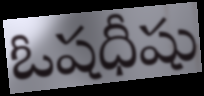
ఓషధీషు